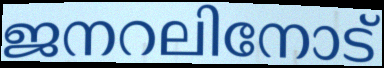
ജനറലിനോട്